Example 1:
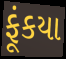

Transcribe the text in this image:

ફૂંકયા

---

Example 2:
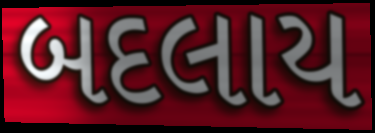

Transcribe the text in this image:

બદલાય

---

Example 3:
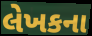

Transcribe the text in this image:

લેખકના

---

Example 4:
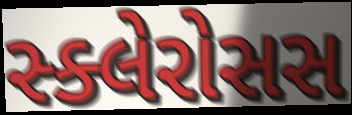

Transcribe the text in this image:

સ્ક્લેરોસસ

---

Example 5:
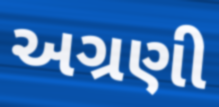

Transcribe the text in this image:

અગ્રણી